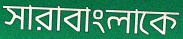
সারাবাংলাকে